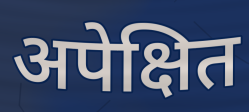
अपेक्षित